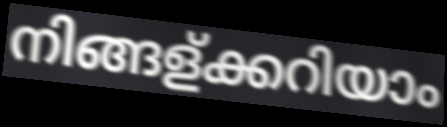
നിങ്ങള്ക്കറിയാം